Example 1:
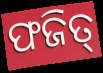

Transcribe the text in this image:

ଫଜିତ୍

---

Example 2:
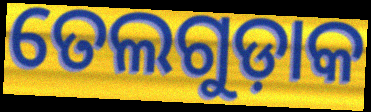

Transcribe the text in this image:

ତେଲଗୁଡ଼ାକ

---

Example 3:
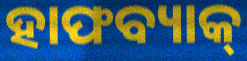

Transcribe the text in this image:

ହାଫବ୍ୟାକ୍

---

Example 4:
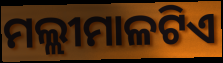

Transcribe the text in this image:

ମଲ୍ଲୀମାଳଟିଏ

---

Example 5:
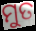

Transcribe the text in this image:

ମୁତ